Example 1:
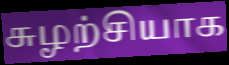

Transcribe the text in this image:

சுழற்சியாக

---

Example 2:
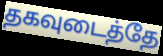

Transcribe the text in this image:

தகவுடைத்தே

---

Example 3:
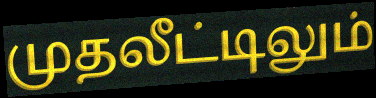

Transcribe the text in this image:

முதலீட்டிலும்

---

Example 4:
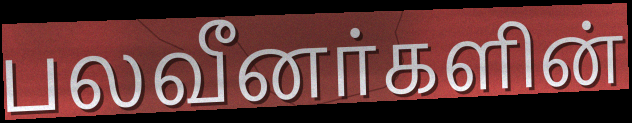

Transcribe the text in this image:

பலவீனர்களின்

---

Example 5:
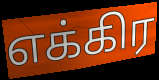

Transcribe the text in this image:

எக்கிர